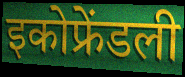
इकोफ्रेंडली